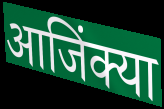
आजिंक्या